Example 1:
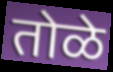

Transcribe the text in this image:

तोळे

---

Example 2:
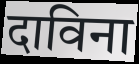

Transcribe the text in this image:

दाविना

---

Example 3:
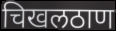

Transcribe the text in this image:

चिखलठाण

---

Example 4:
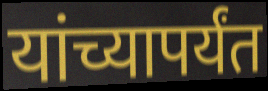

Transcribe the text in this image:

यांच्यापर्यंत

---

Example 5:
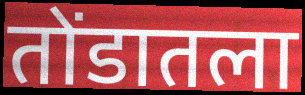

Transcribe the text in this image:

तोंडातला